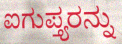
ಐಗುಪ್ತ್ಯರನ್ನು